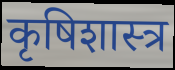
कृषिशास्त्र